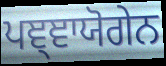
ਪਞ੍ਞਾਯੋਗੇਨ